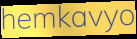
hemkavyo